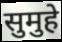
सुमुहे